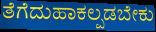
ತೆಗೆದುಹಾಕಲ್ಪಡಬೇಕು